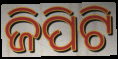
ଜିପିଟି